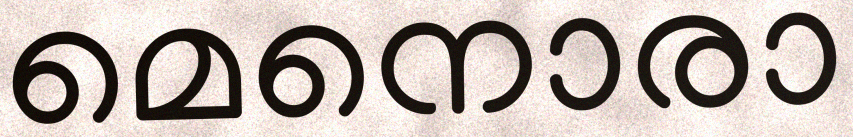
മെനൊരാ